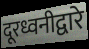
दूरध्वनीद्वारे